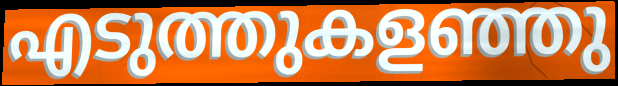
എടുത്തുകളഞ്ഞു